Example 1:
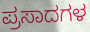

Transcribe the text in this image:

ಪ್ರಸಾದಗಳ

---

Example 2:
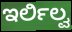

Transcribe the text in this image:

ಇರ್ಲಿಲ್ವ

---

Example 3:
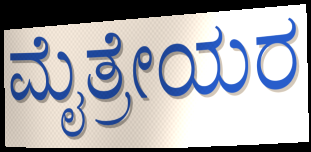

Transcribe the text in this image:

ಮೈತ್ರೇಯರ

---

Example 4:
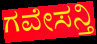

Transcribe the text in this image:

ಗವೇಸನ್ತಿ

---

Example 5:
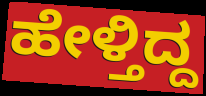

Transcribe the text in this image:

ಹೇಳ್ತಿದ್ದ